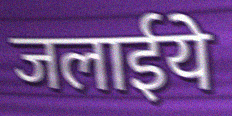
जलाईये